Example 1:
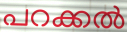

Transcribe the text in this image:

പറക്കൽ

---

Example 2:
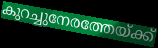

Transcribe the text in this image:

കുറച്ചുനേരത്തേയ്ക്ക്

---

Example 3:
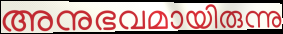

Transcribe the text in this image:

അനുഭവമായിരുന്നു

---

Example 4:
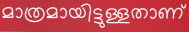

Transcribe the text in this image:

മാത്രമായിട്ടുള്ളതാണ്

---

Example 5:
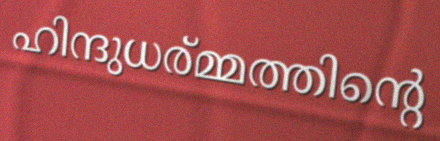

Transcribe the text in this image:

ഹിന്ദുധര്മ്മത്തിന്റെ